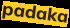
padaka